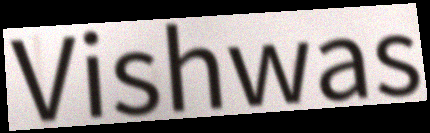
Vishwas